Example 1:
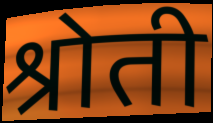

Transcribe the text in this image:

श्रोती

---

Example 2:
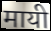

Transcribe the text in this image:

मायी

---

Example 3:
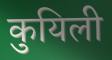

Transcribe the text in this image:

कुयिली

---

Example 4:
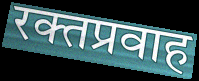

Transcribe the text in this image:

रक्तप्रवाह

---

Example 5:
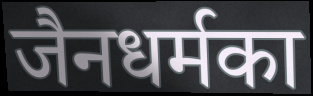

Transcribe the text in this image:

जैनधर्मका